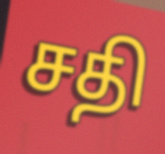
சதி